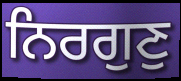
ਨਿਰਗੁਣੁ